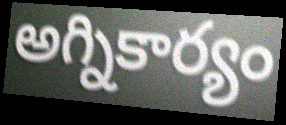
అగ్నికార్యం